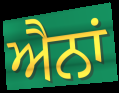
ਐਨਾਂ